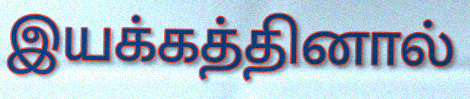
இயக்கத்தினால்